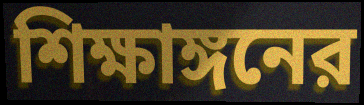
শিক্ষাঙ্গনের